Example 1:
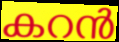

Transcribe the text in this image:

കറൻ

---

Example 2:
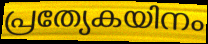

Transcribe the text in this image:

പ്രത്യേകയിനം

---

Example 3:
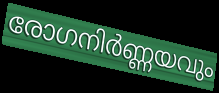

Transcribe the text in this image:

രോഗനിർണ്ണയവും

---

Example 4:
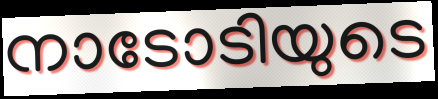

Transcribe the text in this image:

നാടോടിയുടെ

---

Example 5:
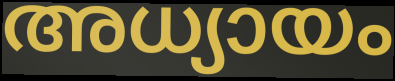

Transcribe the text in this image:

അധ്യായം